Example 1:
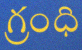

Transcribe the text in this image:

గ్రంధి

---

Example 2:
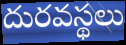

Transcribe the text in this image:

దురవస్థలు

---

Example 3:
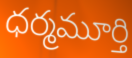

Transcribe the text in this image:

ధర్మమూర్తి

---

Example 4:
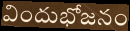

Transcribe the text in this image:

విందుభోజనం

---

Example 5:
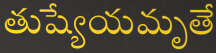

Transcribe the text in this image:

తుష్యేయమృతే